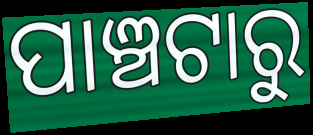
ପାଞ୍ଚଟାରୁ